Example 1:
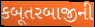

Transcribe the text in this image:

કબૂતરબાજીની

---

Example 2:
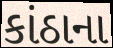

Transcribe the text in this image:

કાંઠાના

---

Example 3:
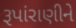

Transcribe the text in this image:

રૂપાંરાણીને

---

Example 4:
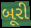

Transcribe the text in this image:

બૂરી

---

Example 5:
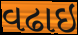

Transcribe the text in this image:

વઢાઇ